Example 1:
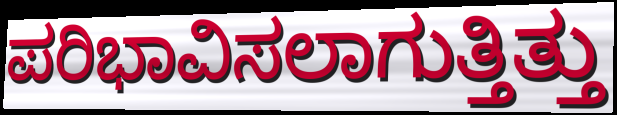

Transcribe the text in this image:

ಪರಿಭಾವಿಸಲಾಗುತ್ತಿತ್ತು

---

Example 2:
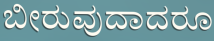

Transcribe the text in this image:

ಬೀರುವುದಾದರೂ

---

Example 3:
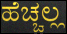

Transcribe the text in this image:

ಹೆಚ್ಚಲ್ಲ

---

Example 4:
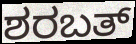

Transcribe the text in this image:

ಶರಬತ್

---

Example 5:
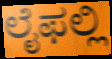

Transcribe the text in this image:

ಲೈಫಲ್ಲಿ